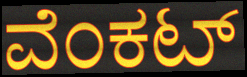
ವೆಂಕಟ್